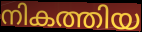
നികത്തിയ